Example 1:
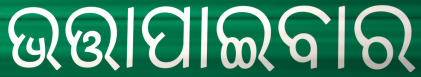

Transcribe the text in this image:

ଭତ୍ତାପାଇବାର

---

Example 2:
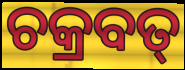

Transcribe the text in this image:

ଚକ୍ରବତ୍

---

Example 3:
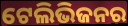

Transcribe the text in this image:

ଟେଲିଭିଜନର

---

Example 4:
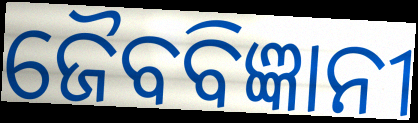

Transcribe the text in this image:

ଜୈବବିଜ୍ଞାନୀ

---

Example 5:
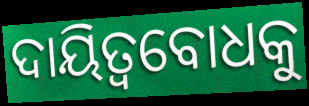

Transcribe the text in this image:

ଦାୟିତ୍ୱବୋଧକୁ